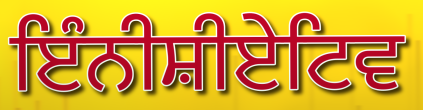
ਇੰਨੀਸ਼ੀਏਟਿਵ